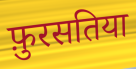
फ़ुरसतिया